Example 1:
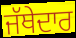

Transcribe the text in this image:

ਜੱਥੇਦਾਰ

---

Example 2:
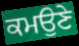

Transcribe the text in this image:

ਕਮਉਣੇ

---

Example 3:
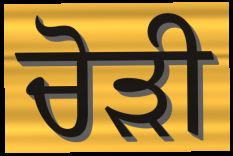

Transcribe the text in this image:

ਚੋੜੀ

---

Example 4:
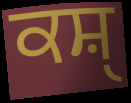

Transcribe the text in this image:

ਕਸ਼ੑ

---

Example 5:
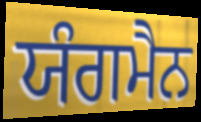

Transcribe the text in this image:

ਯੰਗਮੈਨ